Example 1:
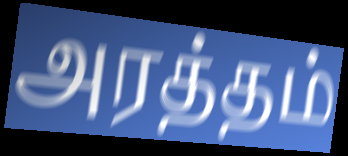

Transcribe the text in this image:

அரத்தம்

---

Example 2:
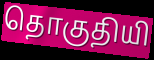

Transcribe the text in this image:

தொகுதியி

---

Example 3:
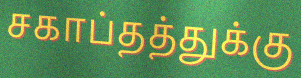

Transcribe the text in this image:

சகாப்தத்துக்கு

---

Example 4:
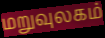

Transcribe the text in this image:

மறுவுலகம்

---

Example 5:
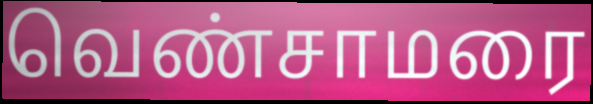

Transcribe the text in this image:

வெண்சாமரை